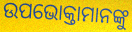
ଉପଭୋକ୍ତାମାନଙ୍କୁ